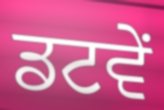
ਡਟਵੇਂ